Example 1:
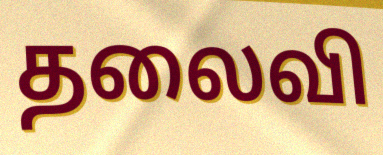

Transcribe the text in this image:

தலைவி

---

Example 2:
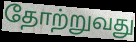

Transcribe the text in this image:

தோற்றுவது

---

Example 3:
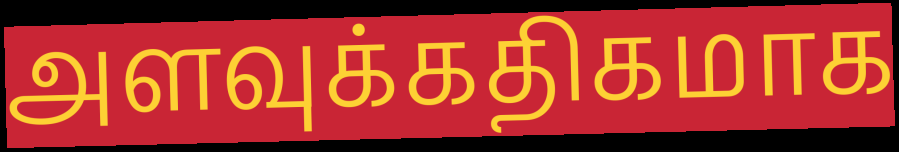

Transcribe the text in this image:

அளவுக்கதிகமாக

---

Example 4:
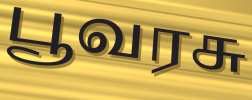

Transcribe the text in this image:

பூவரசு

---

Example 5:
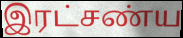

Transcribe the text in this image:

இரட்சண்ய